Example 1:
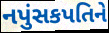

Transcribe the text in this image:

નપુંસકપતિને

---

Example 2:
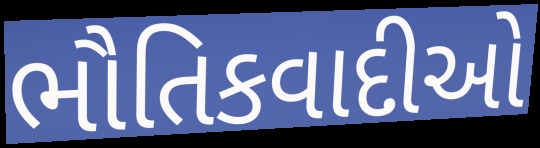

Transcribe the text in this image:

ભૌતિકવાદીઓ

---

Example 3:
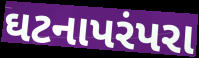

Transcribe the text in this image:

ઘટનાપરંપરા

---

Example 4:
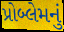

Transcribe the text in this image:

પ્રોબ્લેમનું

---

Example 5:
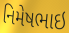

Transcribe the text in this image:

નિમેષભાઇ